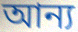
আন্য